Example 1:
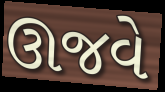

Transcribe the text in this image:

ઊજવે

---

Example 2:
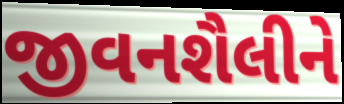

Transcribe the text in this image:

જીવનશૈલીને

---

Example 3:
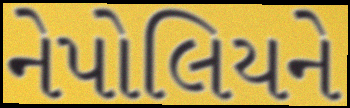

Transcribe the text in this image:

નેપોલિયને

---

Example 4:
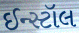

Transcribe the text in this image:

ઈન્સ્ટૉલ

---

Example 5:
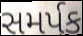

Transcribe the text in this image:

સમર્પક